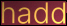
hadd